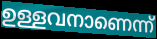
ഉള്ളവനാണെന്ന്